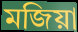
মজিয়া